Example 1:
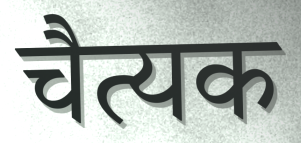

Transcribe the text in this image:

चैत्यक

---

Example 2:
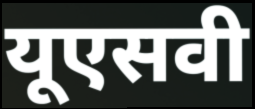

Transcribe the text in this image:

यूएसवी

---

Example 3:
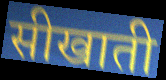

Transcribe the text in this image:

सीखाती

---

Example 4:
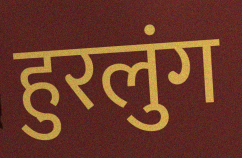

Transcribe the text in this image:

हुरलुंग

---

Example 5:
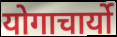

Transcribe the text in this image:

योगाचार्यो